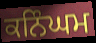
ਕਨਿੰਘਮ